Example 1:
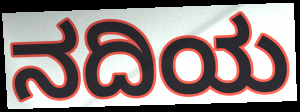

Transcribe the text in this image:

ನದಿಯ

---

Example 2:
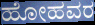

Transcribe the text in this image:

ಹೋಹವರ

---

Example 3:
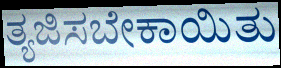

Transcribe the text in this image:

ತ್ಯಜಿಸಬೇಕಾಯಿತು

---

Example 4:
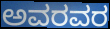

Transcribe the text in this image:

ಅವರವರ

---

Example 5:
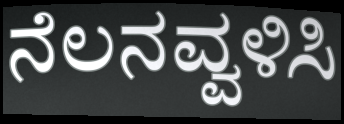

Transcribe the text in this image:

ನೆಲನವ್ವಳಿಸಿ